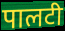
पालटी